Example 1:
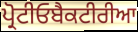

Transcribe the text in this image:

ਪ੍ਰੋਟੀਓਬੈਕਟੀਰੀਆ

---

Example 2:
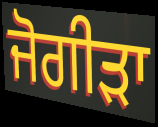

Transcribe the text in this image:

ਜੋਗੀੜਾ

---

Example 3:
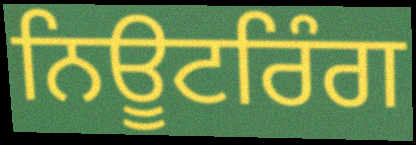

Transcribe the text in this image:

ਨਿਊਟਰਿੰਗ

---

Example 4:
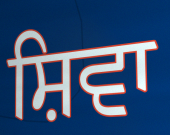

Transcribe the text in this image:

ਸ਼ਿਵਾ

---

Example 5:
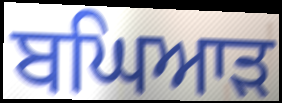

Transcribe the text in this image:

ਬਘਿਆੜ